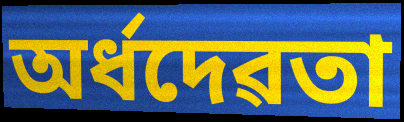
অৰ্ধদেৱতা